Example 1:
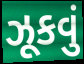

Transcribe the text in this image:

ઝૂકવું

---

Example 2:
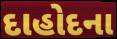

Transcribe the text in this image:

દાહોદના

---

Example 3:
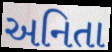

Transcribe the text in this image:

અનિતા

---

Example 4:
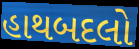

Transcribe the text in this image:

હાથબદલો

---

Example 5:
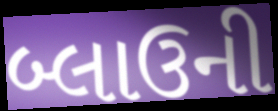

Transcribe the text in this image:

બ્લાઉની